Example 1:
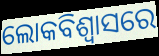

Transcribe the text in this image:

ଲୋକବିଶ୍ୱାସରେ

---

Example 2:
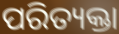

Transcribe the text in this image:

ପରିତ୍ୟକ୍ତା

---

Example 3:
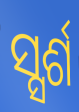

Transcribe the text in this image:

ସ୍ସର୍ଶ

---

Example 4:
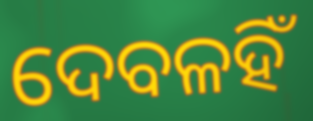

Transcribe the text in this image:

ଦେବଳହିଁ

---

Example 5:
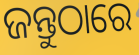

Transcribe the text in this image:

ଜନ୍ତୁଠାରେ